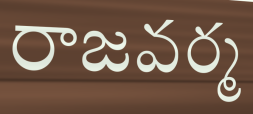
రాజవర్మ